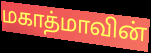
மகாத்மாவின்